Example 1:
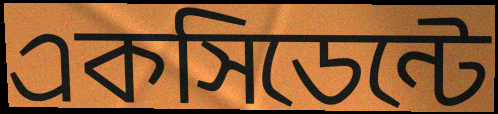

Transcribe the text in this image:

একসিডেন্টে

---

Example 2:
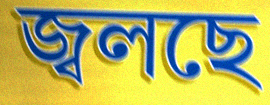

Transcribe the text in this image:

জ্বলছে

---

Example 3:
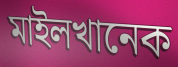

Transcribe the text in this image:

মাইলখানেক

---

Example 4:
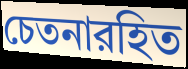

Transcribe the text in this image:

চেতনারহিত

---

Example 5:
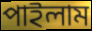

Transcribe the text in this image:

পাইলাম